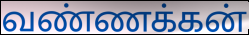
வண்ணக்கன்